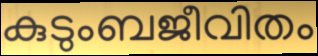
കുടുംബജീവിതം